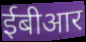
ईबीआर